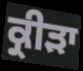
ਕ੍ਰੀੜਾ